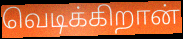
வெடிக்கிறான்